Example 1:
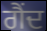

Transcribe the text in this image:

ਗੈਂਦ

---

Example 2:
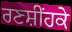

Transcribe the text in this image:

ਰਣਸ਼ੀਂਹਕੇ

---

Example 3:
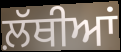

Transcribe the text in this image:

ਲ਼ੱਥੀਆਂ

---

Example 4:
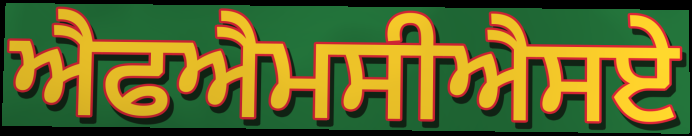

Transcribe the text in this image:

ਐਫਐਮਸੀਐਸਏ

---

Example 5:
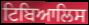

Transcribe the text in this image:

ਟਿਬਿਆਲਿਸ